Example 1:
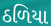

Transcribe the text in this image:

ઠળિયા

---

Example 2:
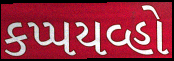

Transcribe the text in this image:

કપ્પયવ્હો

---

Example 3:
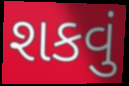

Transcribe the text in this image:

શકવું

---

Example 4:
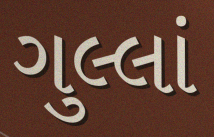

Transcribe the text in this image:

ગુલ્લાં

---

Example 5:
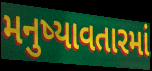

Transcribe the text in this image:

મનુષ્યાવતારમાં